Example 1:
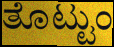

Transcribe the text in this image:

ತೊಟ್ಟುಂ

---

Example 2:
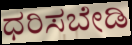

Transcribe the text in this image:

ಧರಿಸಬೇಡಿ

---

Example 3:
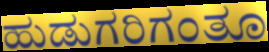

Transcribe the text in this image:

ಹುಡುಗರಿಗಂತೂ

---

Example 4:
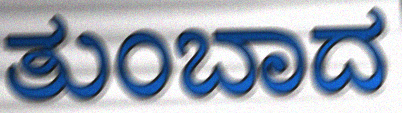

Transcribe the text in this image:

ತುಂಬಾದ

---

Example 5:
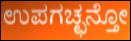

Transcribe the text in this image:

ಉಪಗಚ್ಛನ್ತೋ